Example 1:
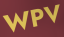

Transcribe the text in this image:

WPV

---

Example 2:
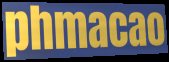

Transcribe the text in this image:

phmacao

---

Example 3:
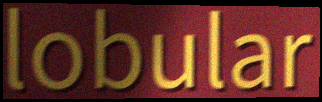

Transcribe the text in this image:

lobular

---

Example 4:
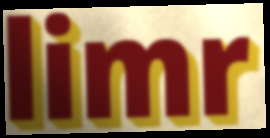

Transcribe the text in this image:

limr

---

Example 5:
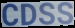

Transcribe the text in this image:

CDSS